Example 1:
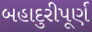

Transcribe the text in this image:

બહાદુરીપૂર્ણ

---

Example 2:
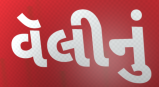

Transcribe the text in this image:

વૅલીનું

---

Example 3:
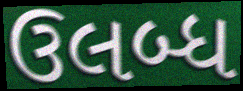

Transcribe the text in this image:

ઉલબ્ધ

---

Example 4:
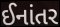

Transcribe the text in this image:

ઈનાંતર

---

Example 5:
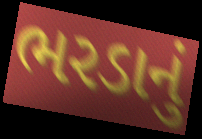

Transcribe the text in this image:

ભરડાનું